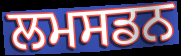
ਲਮਸਡਨ